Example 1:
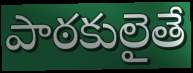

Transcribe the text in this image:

పాఠకులైతే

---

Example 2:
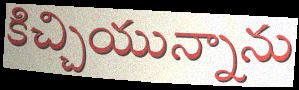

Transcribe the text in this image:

కిచ్చియున్నాను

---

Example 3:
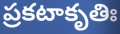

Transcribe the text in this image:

ప్రకటాకృతిః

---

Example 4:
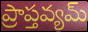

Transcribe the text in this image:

ప్రాప్తవ్యమ్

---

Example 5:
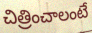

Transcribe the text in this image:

చిత్రించాలంటే